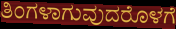
ತಿಂಗಳಾಗುವುದರೊಳಗೆ